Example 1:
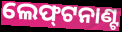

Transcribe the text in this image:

ଲେଫ୍‌ଟନାଣ୍ଟ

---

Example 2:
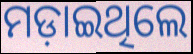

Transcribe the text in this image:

ମଡ଼ାଇଥିଲେ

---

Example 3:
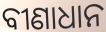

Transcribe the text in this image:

ବୀଣାଧାନ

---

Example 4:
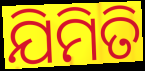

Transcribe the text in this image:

ଯିମିତି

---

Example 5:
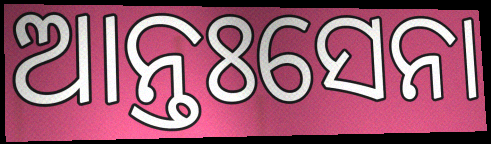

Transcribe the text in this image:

ଆନ୍ତଃସେନା